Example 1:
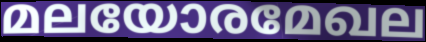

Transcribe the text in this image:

മലയോരമേഖല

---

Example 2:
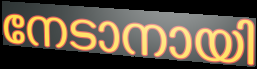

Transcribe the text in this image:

നേടാനായി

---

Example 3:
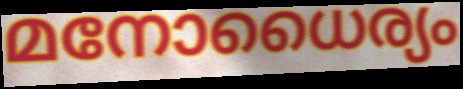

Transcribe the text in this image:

മനോധൈര്യം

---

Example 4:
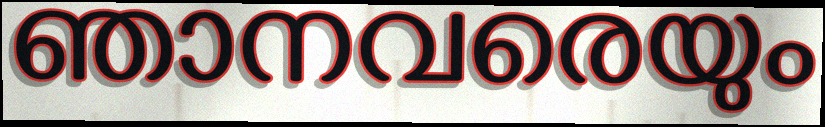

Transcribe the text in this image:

ഞാനവരെയും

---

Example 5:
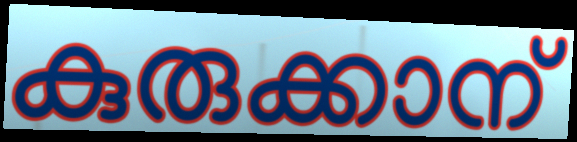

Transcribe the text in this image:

കുരുക്കാന്